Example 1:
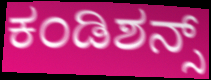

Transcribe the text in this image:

ಕಂಡಿಶನ್ಸ್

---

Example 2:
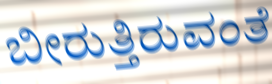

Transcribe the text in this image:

ಬೀರುತ್ತಿರುವಂತೆ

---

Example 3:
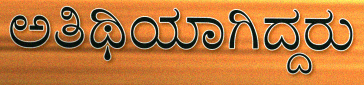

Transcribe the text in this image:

ಅತಿಥಿಯಾಗಿದ್ದರು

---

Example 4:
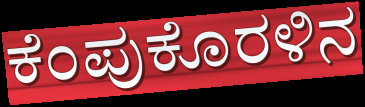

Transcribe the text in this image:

ಕೆಂಪುಕೊರಳಿನ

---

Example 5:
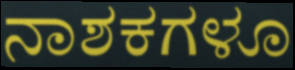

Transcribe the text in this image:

ನಾಶಕಗಳೂ